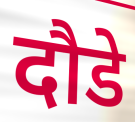
दौडे